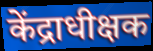
केंद्राधीक्षक